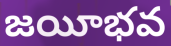
జయీభవ